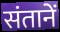
संतानें